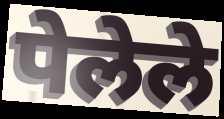
पेलेले